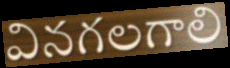
వినగలగాలి